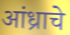
आंध्राचे